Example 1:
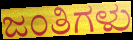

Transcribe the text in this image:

ಜಂತಿಗಳು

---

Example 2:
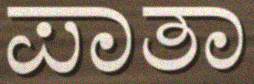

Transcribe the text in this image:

ಪಾತಾ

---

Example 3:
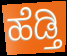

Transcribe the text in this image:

ಹೆಡ್ತಿ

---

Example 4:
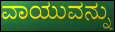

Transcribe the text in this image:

ವಾಯುವನ್ನು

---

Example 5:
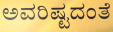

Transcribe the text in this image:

ಅವರಿಷ್ಟದಂತೆ